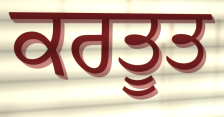
ਕਰਤੂਤ